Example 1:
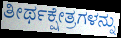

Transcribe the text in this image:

ತೀರ್ಥಕ್ಷೇತ್ರಗಳನ್ನು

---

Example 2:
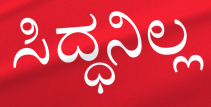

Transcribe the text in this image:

ಸಿದ್ಧನಿಲ್ಲ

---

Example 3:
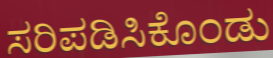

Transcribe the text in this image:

ಸರಿಪಡಿಸಿಕೊಂಡು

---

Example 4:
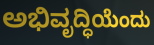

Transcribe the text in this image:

ಅಭಿವೃದ್ಧಿಯೆಂದು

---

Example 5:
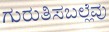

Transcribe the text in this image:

ಗುರುತಿಸಬಲ್ಲೆವು